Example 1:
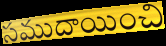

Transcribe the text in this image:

సముదాయించి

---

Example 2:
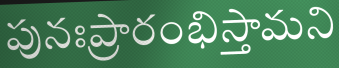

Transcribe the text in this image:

పునఃప్రారంభిస్తామని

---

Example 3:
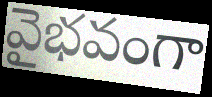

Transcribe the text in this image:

వైభవంగా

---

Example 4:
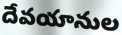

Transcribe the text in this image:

దేవయానుల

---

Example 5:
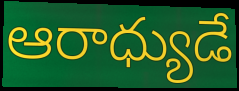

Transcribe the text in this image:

ఆరాధ్యుడే